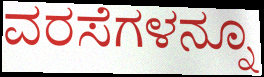
ವರಸೆಗಳನ್ನೂ